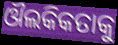
ଔଲକିକତାକୁ